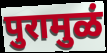
पुरामुळं